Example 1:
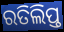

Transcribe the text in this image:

ରତିଲିପ୍ତ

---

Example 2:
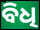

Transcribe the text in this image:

ବିଧି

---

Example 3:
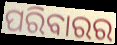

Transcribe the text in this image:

ପରିବାରର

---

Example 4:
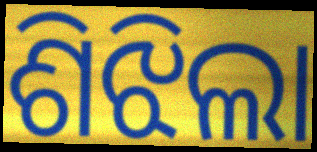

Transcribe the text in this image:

ଶିଝିଲା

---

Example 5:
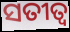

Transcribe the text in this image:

ସତୀତ୍ବ